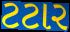
ટટાર